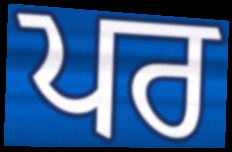
ਪਰ